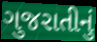
ગુજરાતીનું